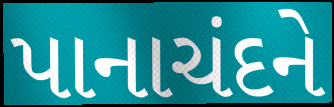
પાનાચંદને